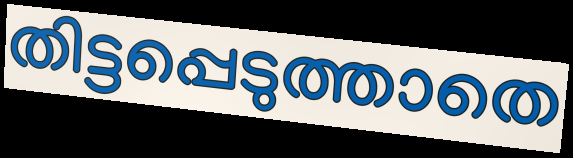
തിട്ടപ്പെടുത്താതെ